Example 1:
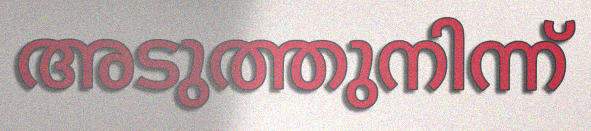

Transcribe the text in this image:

അടുത്തുനിന്ന്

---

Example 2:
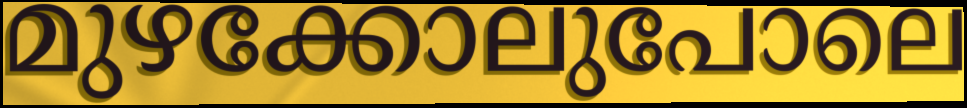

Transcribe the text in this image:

മുഴക്കോലുപോലെ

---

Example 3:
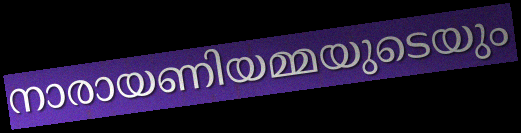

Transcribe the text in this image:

നാരായണിയമ്മയുടെയും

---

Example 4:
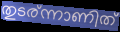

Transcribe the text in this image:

തുടര്ന്നാണിത്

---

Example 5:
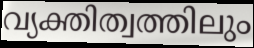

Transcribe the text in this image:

വ്യക്തിത്വത്തിലും